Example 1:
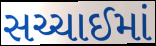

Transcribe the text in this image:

સચ્ચાઈમાં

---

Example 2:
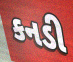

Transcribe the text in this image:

કનડી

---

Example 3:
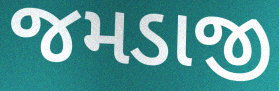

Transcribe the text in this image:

જમડાજી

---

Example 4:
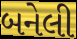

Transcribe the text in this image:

બનેલી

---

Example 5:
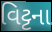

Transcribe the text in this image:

વિટ્ટના